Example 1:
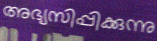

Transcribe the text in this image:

അഭ്യസിപ്പിക്കുന്നു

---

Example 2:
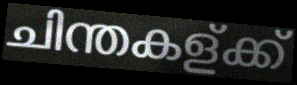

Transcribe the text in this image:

ചിന്തകള്ക്ക്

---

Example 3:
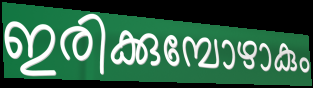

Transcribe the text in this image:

ഇരിക്കുമ്പോഴാകും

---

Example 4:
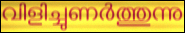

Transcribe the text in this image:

വിളിച്ചുണർത്തുന്നു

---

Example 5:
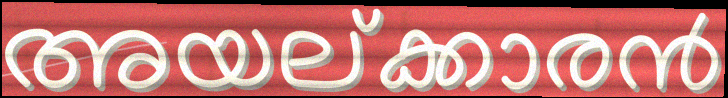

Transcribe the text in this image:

അയല്ക്കാരൻ